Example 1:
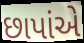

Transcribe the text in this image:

છાપાંએ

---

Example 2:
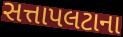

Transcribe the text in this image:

સત્તાપલટાના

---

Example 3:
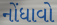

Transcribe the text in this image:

નોંધાવો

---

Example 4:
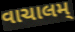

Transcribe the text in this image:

વાચાલમ્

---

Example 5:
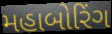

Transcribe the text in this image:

મહાબોરિંગ